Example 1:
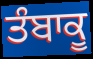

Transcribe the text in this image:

ਤੰਬਾਕੂ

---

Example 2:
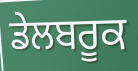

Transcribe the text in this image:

ਡੇਲਬਰੂਕ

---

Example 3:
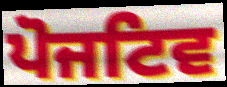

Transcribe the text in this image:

ਪੋਜਟਿਵ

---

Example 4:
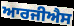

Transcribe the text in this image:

ਆਰਜੀਐਸ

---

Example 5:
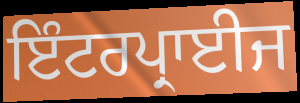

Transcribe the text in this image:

ਇੰਟਰਪ੍ਰਾਈਜ